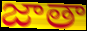
జాతా